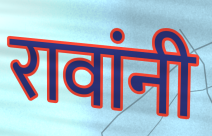
रावांनी